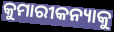
କୁମାରୀକନ୍ୟାକୁ